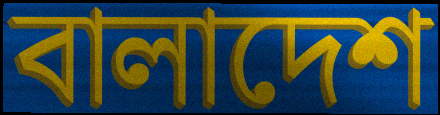
বালাদেশ